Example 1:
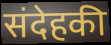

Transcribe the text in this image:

संदेहकी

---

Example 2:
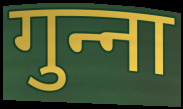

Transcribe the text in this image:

गुन्ना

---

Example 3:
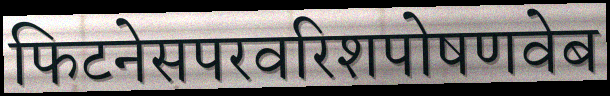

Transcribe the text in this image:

फिटनेसपरवरिशपोषणवेब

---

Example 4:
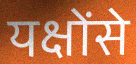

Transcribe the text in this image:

यक्षोंसे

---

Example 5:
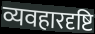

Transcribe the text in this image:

व्यवहारदृष्टि